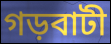
গড়বাটী